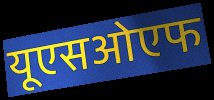
यूएसओएफ